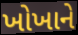
ખોખાને